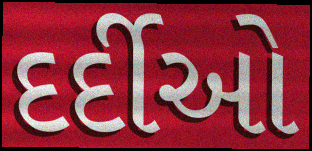
દર્દીઓ